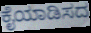
ಕೈಯಾಡಿಸದ